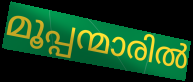
മൂപ്പന്മാരിൽ